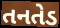
તનતેડ